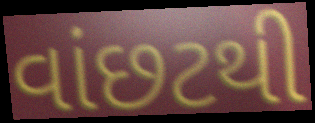
વાંછટથી